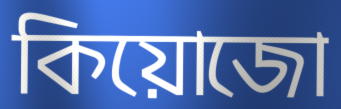
কিয়োজো